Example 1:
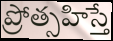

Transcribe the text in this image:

ప్రోత్సహిస్తే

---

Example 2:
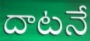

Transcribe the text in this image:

దాటనే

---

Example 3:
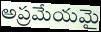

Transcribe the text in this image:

అప్రమేయమై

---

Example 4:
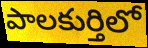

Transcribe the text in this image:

పాలకుర్తిలో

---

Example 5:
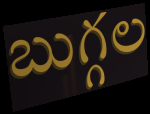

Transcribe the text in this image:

బుగ్గల